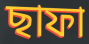
ছাফা